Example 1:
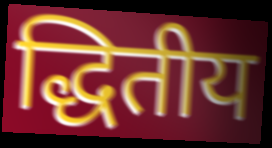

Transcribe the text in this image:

द्धितीय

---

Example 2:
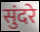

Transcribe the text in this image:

सुंदरे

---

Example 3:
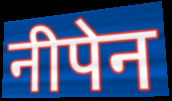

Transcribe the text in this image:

नीपेन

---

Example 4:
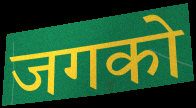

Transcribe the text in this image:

जगको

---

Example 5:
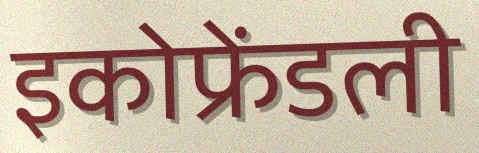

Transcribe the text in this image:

इकोफ्रेंडली